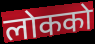
लोकको